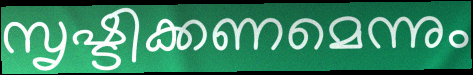
സൃഷ്ടിക്കണമെന്നും